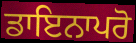
ਡਾਇਨਾਪਰੋ